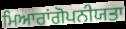
ਮਿਆਰਾਂਗੋਪਨੀਯਤਾ